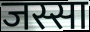
जस्सा